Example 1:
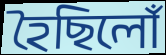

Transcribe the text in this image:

হৈছিলোঁ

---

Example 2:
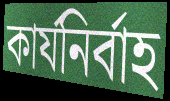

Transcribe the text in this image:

কাৰ্যনিৰ্বাহ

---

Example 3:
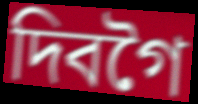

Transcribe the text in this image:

দিবগৈ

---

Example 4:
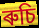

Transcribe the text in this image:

ৰুচি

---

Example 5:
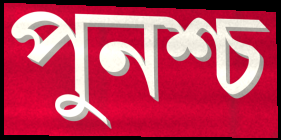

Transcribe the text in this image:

পুনশ্চ